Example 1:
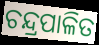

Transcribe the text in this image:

ଚନ୍ଦ୍ରପାଳିତ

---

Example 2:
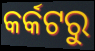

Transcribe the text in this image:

କର୍କଟରୁ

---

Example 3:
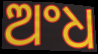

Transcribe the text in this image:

ଅଂଧ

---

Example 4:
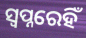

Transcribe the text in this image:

ସ୍ୱପ୍ନରେହିଁ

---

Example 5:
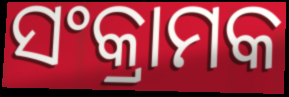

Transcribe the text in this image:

ସଂକ୍ରାମକ